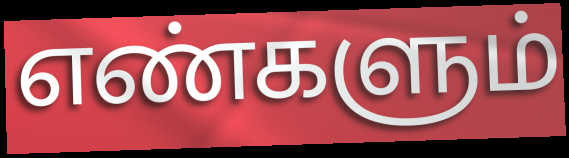
எண்களும்